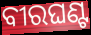
ବୀରଘଣ୍ଟ